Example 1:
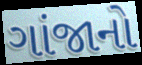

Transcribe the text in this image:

ગાંજાનો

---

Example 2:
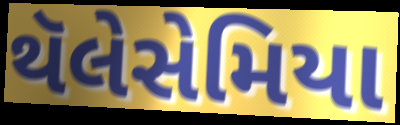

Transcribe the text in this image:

થૅલેસેમિયા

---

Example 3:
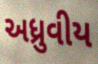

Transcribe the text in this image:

અધ્રુવીય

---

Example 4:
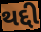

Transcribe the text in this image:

થદ્દી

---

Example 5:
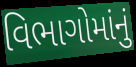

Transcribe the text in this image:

વિભાગોમાંનું